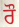
ਰੌ